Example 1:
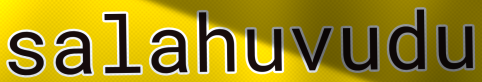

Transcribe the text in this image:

salahuvudu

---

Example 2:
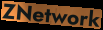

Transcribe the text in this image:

ZNetwork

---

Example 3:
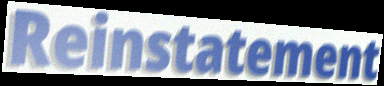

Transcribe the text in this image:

Reinstatement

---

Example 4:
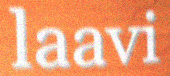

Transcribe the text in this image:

laavi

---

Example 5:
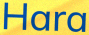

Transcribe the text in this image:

Hara